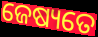
ଜେଷ୍ୟତେ